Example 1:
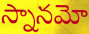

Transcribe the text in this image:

స్నానమో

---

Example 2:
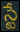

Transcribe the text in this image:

స్టే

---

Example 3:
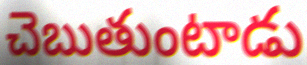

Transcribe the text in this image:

చెబుతుంటాడు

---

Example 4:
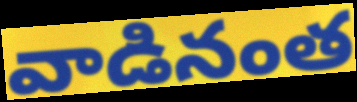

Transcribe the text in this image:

వాడినంత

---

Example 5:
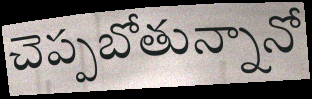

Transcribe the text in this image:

చెప్పబోతున్నానో